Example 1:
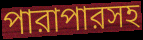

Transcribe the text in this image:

পারাপারসহ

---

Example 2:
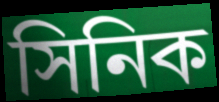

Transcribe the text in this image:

সিনিক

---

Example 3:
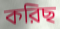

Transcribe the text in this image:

করিছ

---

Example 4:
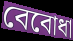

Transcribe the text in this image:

বেবোধা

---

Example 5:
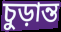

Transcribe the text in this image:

চুড়ান্ত